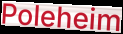
Poleheim